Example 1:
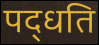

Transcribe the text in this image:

पद्धति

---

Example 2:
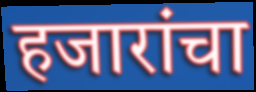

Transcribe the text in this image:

हजारांचा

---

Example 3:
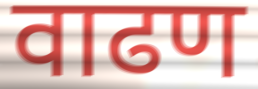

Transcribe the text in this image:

वाढण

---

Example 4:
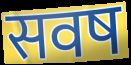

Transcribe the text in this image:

सवष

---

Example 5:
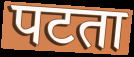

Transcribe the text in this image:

पटता